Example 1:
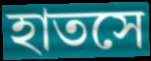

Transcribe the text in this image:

হাতসে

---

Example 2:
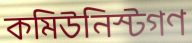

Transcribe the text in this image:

কমিউনিস্টগণ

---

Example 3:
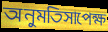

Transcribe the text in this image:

অনুমতিসাপেক্ষ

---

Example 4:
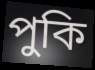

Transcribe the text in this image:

পুকি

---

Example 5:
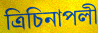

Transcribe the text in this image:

ত্রিচিনাপলী